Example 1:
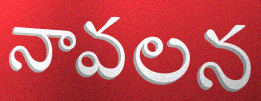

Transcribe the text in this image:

నావలన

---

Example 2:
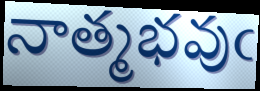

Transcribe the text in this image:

నాత్మభవుఁ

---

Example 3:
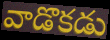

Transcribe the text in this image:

వాడొకడు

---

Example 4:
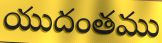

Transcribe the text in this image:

యుదంతము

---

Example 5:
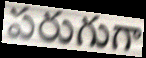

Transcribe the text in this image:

పరుగుగా